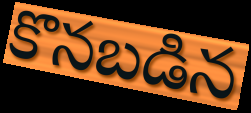
కొనబడిన